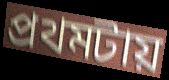
প্রথমটায়